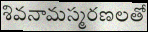
శివనామస్మరణలతో